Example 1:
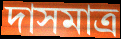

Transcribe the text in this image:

দাসমাত্র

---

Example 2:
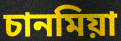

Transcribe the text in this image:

চানমিয়া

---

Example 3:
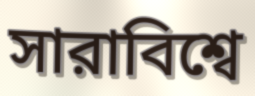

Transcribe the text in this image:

সারাবিশ্বে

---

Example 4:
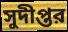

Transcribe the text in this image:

সুদীপ্তর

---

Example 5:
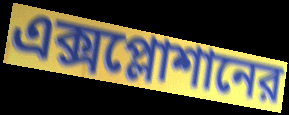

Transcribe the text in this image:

এক্সপ্লোশানের